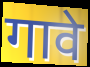
गावे